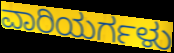
ವಾರಿಯರ್ಗಳು